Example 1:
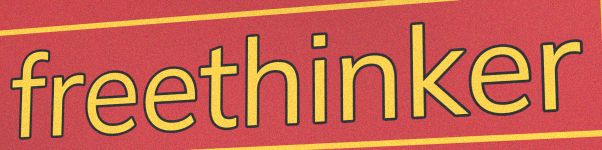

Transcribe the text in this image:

freethinker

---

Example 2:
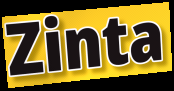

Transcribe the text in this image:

Zinta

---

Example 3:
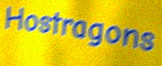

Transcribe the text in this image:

Hostragons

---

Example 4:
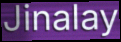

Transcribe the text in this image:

Jinalay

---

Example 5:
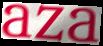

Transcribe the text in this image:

aza